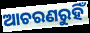
ଆଚରଣରୁହିଁ